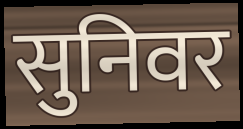
सुनिवर